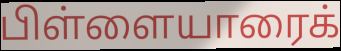
பிள்ளையாரைக்